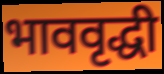
भाववृद्धी